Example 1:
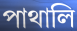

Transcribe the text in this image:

পাথালি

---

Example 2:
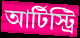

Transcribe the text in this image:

আর্টিস্ট্রি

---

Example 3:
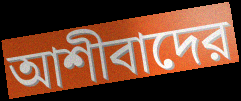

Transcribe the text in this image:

আশীবাদের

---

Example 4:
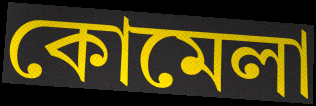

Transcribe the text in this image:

কোমেলা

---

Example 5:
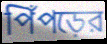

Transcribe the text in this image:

পিঁপড়ের